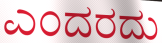
ಎಂದರದು